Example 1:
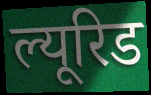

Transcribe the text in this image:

ल्यूरिड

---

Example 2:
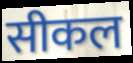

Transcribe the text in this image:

सीकल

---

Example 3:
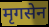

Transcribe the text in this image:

मृगसेन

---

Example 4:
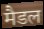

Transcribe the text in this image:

मैडल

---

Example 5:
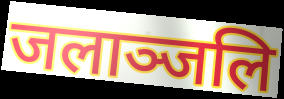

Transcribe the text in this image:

जलाञ्जलि